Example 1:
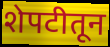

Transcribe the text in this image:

शेपटीतून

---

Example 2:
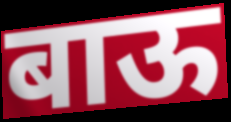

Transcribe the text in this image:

बाऊ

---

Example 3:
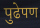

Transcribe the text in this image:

पुढेपण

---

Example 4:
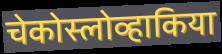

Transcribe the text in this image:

चेकोस्लोव्हाकिया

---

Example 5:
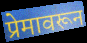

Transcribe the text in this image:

प्रेमावरून